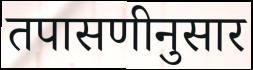
तपासणीनुसार